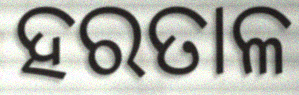
ହରତାଳ